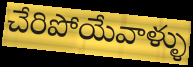
చేరిపోయేవాళ్ళు